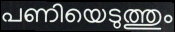
പണിയെടുത്തും